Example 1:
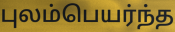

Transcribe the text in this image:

புலம்பெயர்ந்த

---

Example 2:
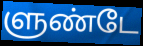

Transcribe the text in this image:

ளுண்டே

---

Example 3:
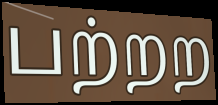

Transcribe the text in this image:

பற்றற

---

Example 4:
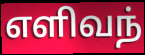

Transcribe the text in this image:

எளிவந்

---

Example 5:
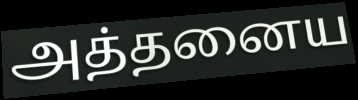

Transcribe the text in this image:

அத்தனைய